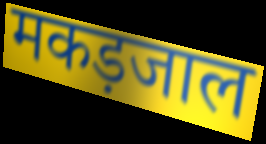
मकड़जाल